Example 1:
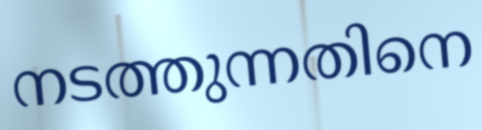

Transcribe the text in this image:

നടത്തുന്നതിനെ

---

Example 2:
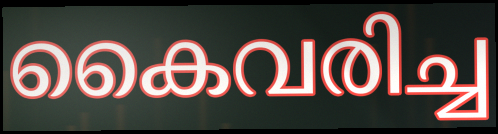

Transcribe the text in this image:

കൈവരിച്ച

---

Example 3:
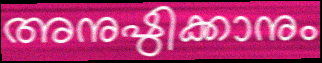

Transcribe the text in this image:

അനുഷ്ഠിക്കാനും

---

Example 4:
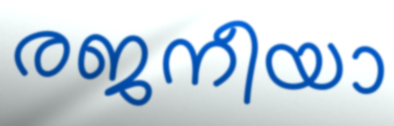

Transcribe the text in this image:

രജനീയാ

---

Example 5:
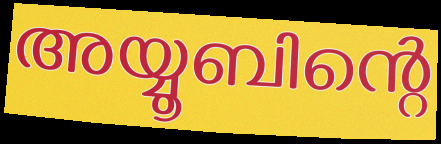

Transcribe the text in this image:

അയ്യൂബിന്റെ